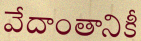
వేదాంతానికీ